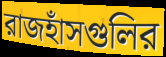
রাজহাঁসগুলির